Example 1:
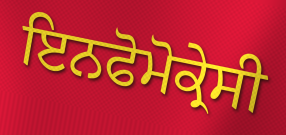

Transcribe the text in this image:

ਇਨਫੋਮੋਕ੍ਰੇਸੀ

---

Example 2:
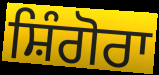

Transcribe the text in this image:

ਸ਼ਿੰਗੋਰਾ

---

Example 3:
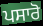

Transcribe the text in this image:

ਪਸਾਰੋ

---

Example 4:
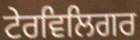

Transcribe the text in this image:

ਟੇਰਵਿਲਿਗਰ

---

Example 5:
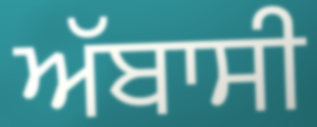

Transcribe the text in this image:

ਅੱਬਾਸੀ